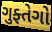
ગુફ્તેગો